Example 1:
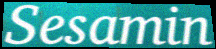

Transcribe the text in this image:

Sesamin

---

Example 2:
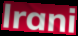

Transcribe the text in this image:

Irani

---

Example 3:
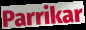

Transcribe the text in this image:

Parrikar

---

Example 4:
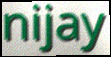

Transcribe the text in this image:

nijay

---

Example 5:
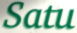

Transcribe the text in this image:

Satu